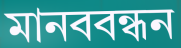
মানববন্ধন